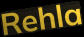
Rehla